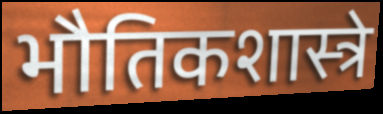
भौतिकशास्त्रे